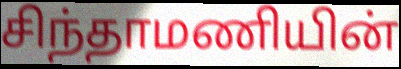
சிந்தாமணியின்